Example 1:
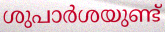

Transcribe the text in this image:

ശുപാർശയുണ്ട്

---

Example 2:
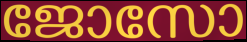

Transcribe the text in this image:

ജോസോ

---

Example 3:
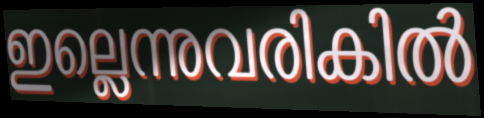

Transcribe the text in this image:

ഇല്ലെന്നുവരികിൽ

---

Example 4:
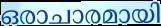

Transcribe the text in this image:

ഒരാചാരമായി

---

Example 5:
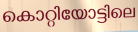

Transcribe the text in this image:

കൊറ്റിയോട്ടിലെ